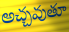
అచ్చవుతూ